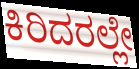
ಕಿರಿದರಲ್ಲೇ